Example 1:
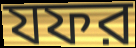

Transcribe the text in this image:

যফর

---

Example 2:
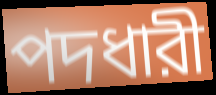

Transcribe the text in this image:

পদধারী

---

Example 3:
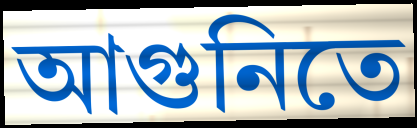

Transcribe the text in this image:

আগুনিতে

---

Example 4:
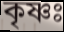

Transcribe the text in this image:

কৃষ্ণঃ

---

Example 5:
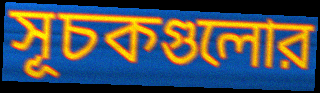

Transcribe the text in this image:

সূচকগুলোর